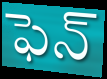
ఫెన్